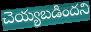
చెయ్యబడిందని